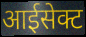
आईसेक्ट